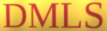
DMLS